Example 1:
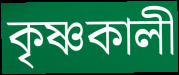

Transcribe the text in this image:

কৃষ্ণকালী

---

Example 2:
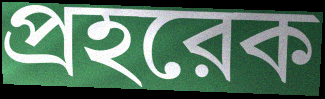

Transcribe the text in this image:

প্রহরেক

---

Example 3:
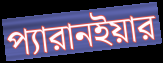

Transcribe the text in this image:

প্যারানইয়ার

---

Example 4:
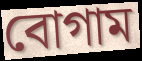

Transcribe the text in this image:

বোগাম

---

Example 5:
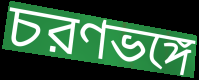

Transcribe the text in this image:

চরণভঙ্গে